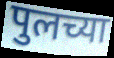
पुलच्या